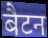
बैटन